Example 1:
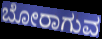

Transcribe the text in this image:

ಬೋರಾಗುವ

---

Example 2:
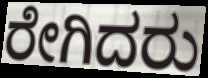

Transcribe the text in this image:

ರೇಗಿದರು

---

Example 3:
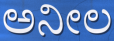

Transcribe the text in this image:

ಅನೀಲ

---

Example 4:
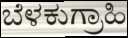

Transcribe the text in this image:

ಬೆಳಕುಗ್ರಾಹಿ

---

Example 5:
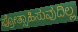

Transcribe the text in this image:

ಪ್ರೋತ್ಸಾಹಿಸುವುದಿಲ್ಲ